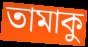
তামাকু